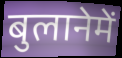
बुलानेमें